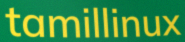
tamillinux